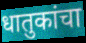
धातुकांचा